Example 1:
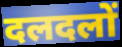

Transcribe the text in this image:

दलदलों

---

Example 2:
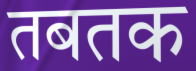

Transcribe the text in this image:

तबतक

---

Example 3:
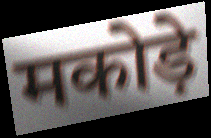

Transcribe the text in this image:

मकोड़े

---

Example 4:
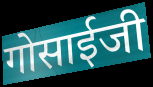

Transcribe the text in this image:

गोसाईजी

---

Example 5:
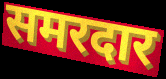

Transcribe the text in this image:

समरदार